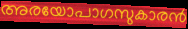
അരയോപാഗസുകാരൻ